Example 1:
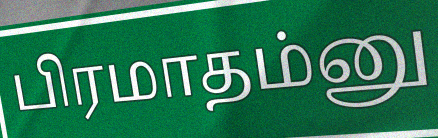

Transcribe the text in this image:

பிரமாதம்னு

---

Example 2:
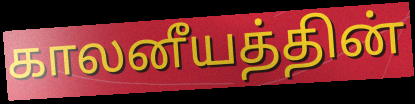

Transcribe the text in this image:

காலனீயத்தின்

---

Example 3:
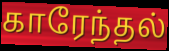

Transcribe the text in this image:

காரேந்தல்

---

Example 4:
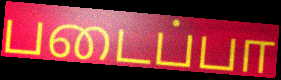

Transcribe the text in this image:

படைப்பா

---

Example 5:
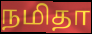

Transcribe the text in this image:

நமிதா